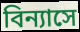
বিন্যাসে